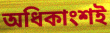
অধিকাংশই